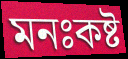
মনঃকষ্ট